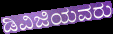
ಡಿವಿಜಿಯವರು